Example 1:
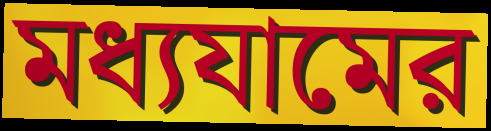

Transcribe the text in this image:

মধ্যযামের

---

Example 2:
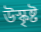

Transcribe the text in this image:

উস্কৃষ্ট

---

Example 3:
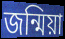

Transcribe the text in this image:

জন্মিয়া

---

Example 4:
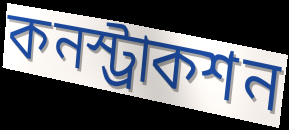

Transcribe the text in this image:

কনস্ট্রাকশন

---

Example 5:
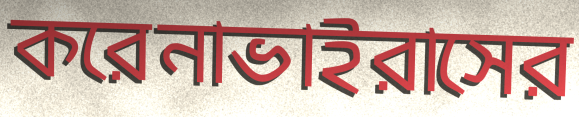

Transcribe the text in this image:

করেনাভাইরাসের